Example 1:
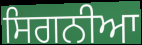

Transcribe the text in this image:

ਸਿਗਨੀਆ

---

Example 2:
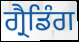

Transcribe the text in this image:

ਗ੍ਰੈਡਿੰਗ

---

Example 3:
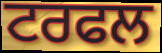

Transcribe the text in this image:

ਟਰਫਲ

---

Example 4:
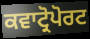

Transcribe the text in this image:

ਕਵਾਟ੍ਰੋਪੋਰਟ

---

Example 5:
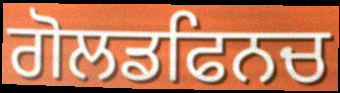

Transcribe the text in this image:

ਗੋਲਡਫਿਨਚ